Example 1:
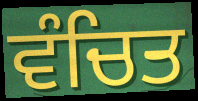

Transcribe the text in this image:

ਵੰਚਿਤ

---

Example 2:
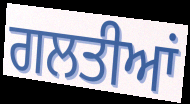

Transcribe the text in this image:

ਗਲਤੀਆਂ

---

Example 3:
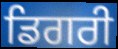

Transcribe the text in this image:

ਡਿਗਰੀ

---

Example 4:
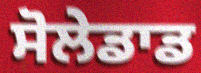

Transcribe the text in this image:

ਸੋਲੇਡਾਡ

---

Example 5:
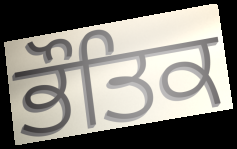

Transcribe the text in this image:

ਭੌਤਿਕ